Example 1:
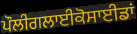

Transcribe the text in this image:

ਪੌਲੀਗਲਾਈਕੋਸਾਈਡਾਂ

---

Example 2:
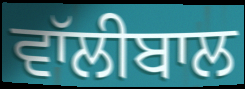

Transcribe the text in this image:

ਵਾੱਲੀਬਾਲ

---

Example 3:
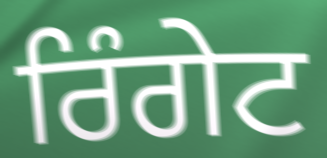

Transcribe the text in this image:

ਰਿੰਗੇਟ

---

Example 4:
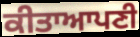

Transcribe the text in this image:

ਕੀਤਾਆਪਣੀ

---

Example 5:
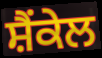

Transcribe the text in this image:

ਸ਼ੈਂਕੇਲ